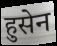
हुसेन